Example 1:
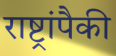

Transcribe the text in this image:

राष्ट्रांपैकी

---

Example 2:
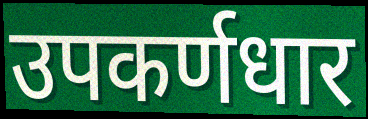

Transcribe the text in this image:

उपकर्णधार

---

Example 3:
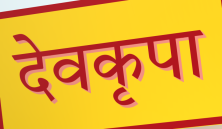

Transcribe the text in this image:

देवकृपा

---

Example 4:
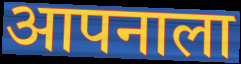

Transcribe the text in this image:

आपनाला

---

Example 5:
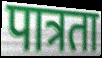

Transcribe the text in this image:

पात्रता